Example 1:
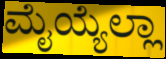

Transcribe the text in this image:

ಮೈಯ್ಯೆಲ್ಲಾ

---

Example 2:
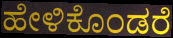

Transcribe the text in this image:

ಹೇಳಿಕೊಂಡರೆ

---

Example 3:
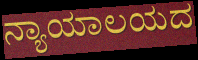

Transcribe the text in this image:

ನ್ಯಾಯಾಲಯದ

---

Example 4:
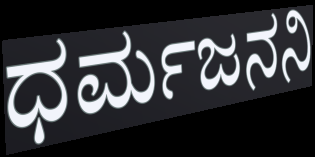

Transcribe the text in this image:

ಧರ್ಮಜನನಿ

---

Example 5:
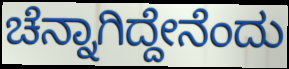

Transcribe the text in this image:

ಚೆನ್ನಾಗಿದ್ದೇನೆಂದು